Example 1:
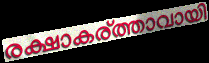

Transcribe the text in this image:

രക്ഷാകര്ത്താവായി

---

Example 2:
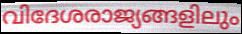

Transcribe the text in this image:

വിദേശരാജ്യങ്ങളിലും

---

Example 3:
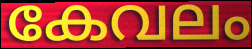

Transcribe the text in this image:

കേവലം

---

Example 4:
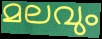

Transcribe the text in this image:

മലവും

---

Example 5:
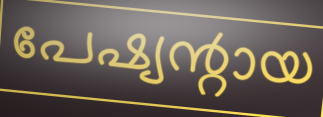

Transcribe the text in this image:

പേഷ്യന്റായ